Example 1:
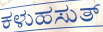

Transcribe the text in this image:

ಕಳುಹಸುತ್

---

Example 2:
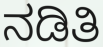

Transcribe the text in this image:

ನಡಿತಿ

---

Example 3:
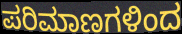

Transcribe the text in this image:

ಪರಿಮಾಣಗಳಿಂದ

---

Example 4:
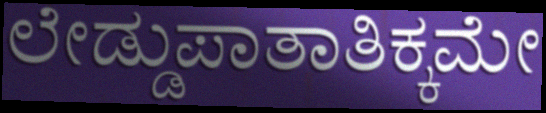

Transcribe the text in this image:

ಲೇಡ್ಡುಪಾತಾತಿಕ್ಕಮೇ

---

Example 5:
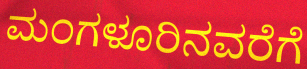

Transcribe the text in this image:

ಮಂಗಳೂರಿನವರೆಗೆ